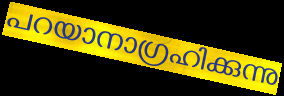
പറയാനാഗ്രഹിക്കുന്നു